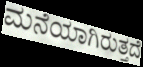
ಮನೆಯಾಗಿರುತ್ತದೆ